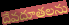
దేవదూతలను